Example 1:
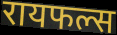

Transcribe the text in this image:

रायफल्स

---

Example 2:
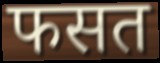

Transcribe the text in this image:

फसत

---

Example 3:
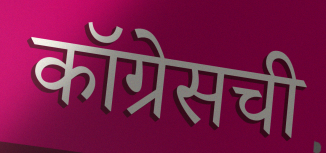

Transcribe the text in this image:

कॉग्रेसची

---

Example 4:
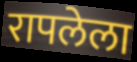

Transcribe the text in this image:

रापलेला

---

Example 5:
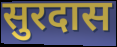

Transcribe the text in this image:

सुरदास